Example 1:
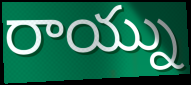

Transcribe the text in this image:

రాయ్ను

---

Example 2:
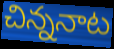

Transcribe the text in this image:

చిన్ననాట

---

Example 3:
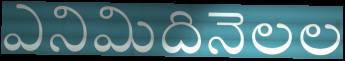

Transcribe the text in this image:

ఎనిమిదినెలల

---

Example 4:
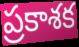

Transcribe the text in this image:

ప్రకాశక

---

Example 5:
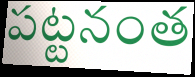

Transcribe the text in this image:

పట్టనంత